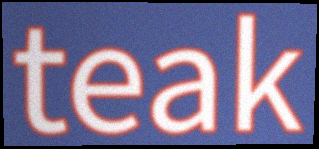
teak